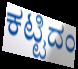
ಕಟ್ಟಿದಂ